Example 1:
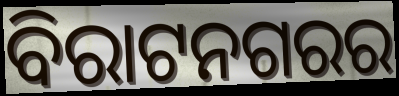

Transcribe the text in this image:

ବିରାଟନଗରର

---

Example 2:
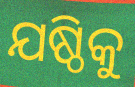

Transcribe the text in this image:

ଯଷ୍ଠିକୁ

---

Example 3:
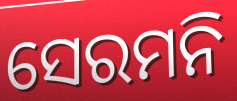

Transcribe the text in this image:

ସେରମନି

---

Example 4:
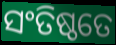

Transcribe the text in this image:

ସଂତିଷ୍ଠତେ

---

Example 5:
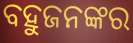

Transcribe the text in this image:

ବହୁଜନଙ୍କର